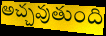
అచ్చవుతుంది